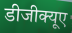
डीजीक्यूए